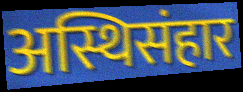
अस्थिसंहार